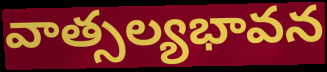
వాత్సల్యభావన